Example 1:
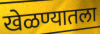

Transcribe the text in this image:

खेळण्यातला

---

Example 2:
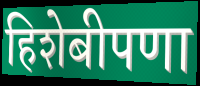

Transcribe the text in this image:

हिशेबीपणा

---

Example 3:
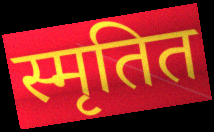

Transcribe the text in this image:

स्मृतित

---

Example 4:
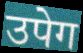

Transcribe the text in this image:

उपेग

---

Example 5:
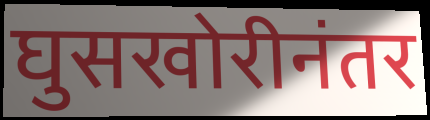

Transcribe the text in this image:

घुसखोरीनंतर